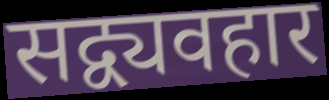
सद्व्यवहार